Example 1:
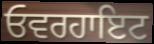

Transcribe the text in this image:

ਓਵਰਹਾਇਟ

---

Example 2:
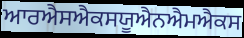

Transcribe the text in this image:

ਆਰਐਸਐਕਸਯੂਐਨਐਮਐਕਸ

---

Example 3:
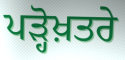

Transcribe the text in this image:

ਪੜ੍ਹੋਖ਼ਤਰੇ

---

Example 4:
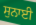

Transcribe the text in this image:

ਸੁਨਾਈ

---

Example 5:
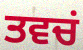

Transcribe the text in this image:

ਤਵਚਂ